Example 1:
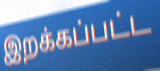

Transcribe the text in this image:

இறக்கப்பட்ட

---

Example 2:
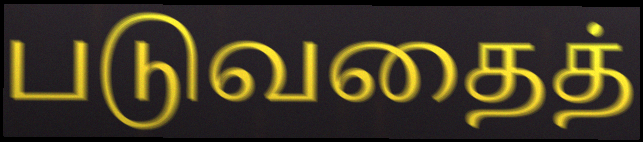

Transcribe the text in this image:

படுவதைத்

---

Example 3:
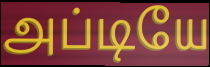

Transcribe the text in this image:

அப்டியே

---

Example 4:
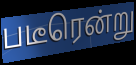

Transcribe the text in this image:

படீரென்று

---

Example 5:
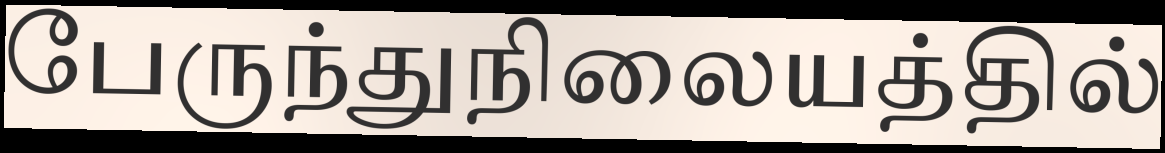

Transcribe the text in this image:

பேருந்துநிலையத்தில்